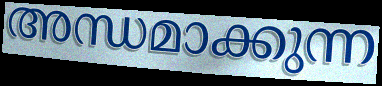
അന്ധമാക്കുന്ന